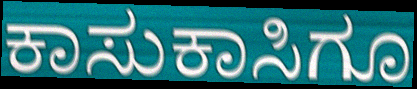
ಕಾಸುಕಾಸಿಗೂ